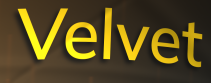
Velvet